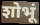
शोभूं